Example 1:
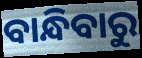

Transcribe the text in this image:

ବାନ୍ଧିବାରୁ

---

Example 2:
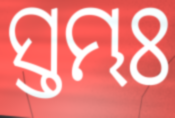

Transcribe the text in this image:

ସ୍ତମ୍ଭଃ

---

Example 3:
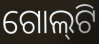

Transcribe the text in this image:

ଗୋଲ୍‍ଟି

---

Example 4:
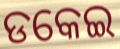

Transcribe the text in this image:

ଡକେଇ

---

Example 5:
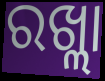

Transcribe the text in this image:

ରଖ୍ଲା